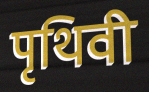
पृथिवी